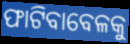
ଫାଟିବାବେଳକୁ